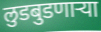
लुडबुडणाऱ्या